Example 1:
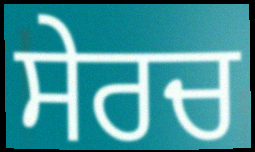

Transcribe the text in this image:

ਸੇਰਚ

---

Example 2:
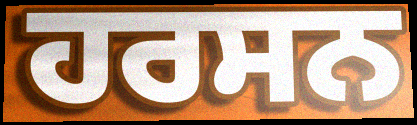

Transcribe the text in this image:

ਹਰਸਨ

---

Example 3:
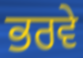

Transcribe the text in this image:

ਭਰਵੇ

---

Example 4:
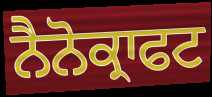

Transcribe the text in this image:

ਨੈਨੋਕ੍ਰਾਫਟ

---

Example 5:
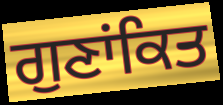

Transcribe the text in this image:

ਗੁਣਾਂਕਿਤ